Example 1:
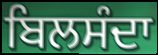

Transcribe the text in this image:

ਬਿਲਸੰਦਾ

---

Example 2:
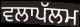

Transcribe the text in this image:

ਵਲਾਪੱਲਮ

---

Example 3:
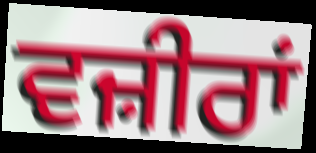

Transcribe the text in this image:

ਵਜ਼ੀਰਾਂ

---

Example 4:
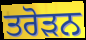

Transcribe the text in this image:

ਤਰੋੜਨ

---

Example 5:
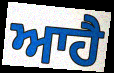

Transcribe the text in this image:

ਆਹੈ